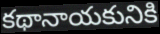
కథానాయకునికి